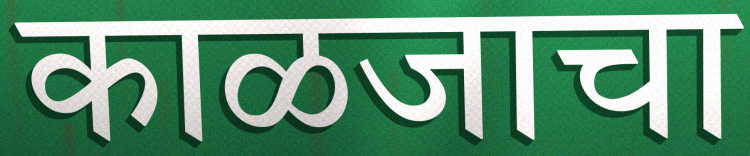
काळजाचा